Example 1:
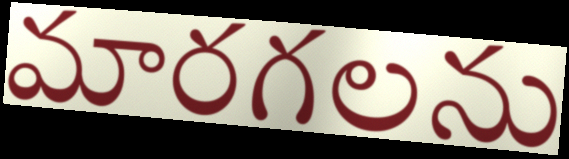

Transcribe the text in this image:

మారగలను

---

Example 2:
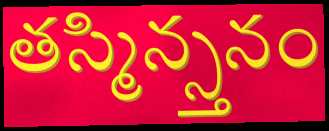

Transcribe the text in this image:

తస్మిన్స్తనం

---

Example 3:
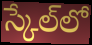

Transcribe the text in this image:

స్కేల్‌లో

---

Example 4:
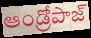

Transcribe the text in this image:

ఆండ్రోపాజ్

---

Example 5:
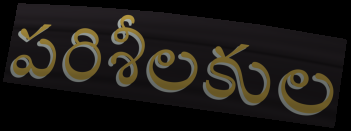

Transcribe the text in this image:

పరిశీలకుల